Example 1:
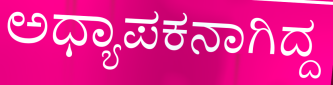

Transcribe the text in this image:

ಅಧ್ಯಾಪಕನಾಗಿದ್ದ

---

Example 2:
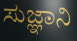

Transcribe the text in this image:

ಸುಜ್ಞಾನಿ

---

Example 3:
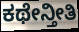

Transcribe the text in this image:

ಕಥೇನ್ತೀತಿ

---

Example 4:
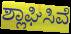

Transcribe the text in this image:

ಶ್ಲಾಘಿಸಿವೆ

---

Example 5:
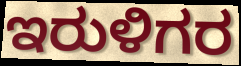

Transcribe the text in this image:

ಇರುಳಿಗರ